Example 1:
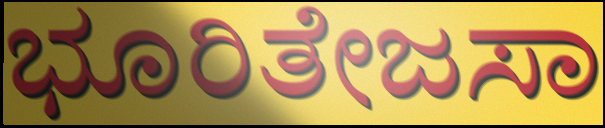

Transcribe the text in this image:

ಭೂರಿತೇಜಸಾ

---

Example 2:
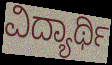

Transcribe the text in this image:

ವಿದ್ಯಾರ್ಥಿ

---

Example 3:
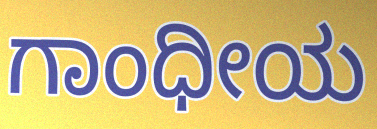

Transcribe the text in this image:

ಗಾಂಧೀಯ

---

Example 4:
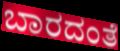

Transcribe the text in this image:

ಬಾರದಂತೆ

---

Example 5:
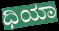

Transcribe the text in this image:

ಧಿಯಾ